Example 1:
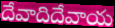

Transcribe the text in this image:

దేవాదిదేవాయ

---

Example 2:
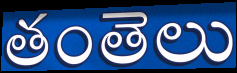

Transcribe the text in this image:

తంతెలు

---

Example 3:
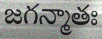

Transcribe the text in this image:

జగన్మాతః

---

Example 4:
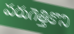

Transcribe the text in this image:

పరుగెత్తికొని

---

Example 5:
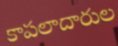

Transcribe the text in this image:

కాపలాదారుల